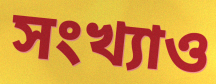
সংখ্যাও